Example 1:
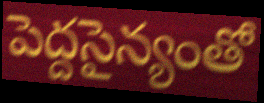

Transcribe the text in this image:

పెద్దసైన్యంతో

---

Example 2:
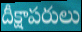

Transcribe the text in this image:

దీక్షాపరులు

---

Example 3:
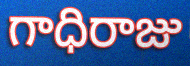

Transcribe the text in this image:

గాధిరాజు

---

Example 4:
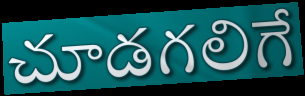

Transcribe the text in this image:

చూడగలిగే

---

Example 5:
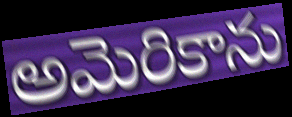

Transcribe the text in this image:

అమెరికాను